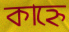
কাহ্নে